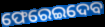
ଫେରେଇଦେବ